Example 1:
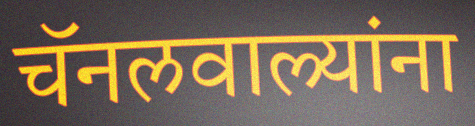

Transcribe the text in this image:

चॅनलवाल्यांना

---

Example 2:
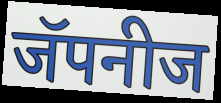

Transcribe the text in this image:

जॅपनीज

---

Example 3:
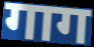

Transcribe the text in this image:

गाग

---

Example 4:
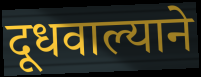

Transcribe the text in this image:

दूधवाल्याने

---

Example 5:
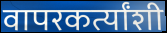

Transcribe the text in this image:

वापरकर्त्यांशी